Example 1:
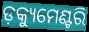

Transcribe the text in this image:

ଡ଼କ୍ୟୁମେଣ୍ଟରି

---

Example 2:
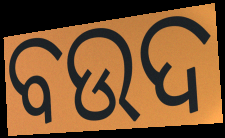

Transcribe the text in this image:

ବଉଦ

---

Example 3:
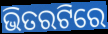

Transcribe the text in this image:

ଭିତରଟିରେ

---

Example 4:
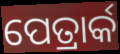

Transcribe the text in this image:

ପେତ୍ରାର୍କ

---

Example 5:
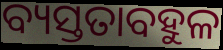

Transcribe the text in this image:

ବ୍ୟସ୍ତତାବହୁଳ